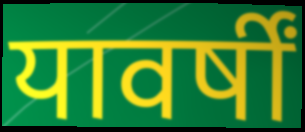
यावर्षीं